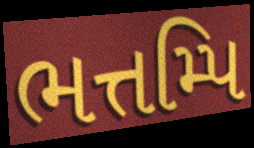
ભત્તમ્પિ